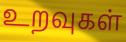
உறவுகள்